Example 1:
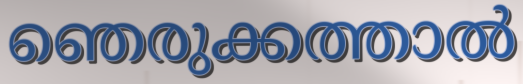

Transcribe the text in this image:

ഞെരുക്കത്താൽ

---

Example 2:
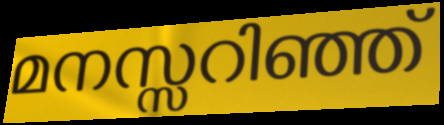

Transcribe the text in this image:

മനസ്സറിഞ്ഞ്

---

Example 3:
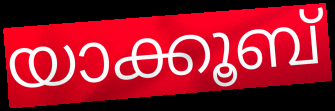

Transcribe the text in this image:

യാക്കൂബ്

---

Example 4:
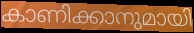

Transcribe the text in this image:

കാണിക്കാനുമായി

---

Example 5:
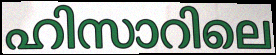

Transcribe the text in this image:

ഹിസാറിലെ